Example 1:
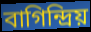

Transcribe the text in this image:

বাগিন্দ্ৰিয়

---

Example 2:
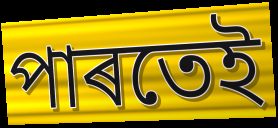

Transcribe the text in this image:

পাৰতেই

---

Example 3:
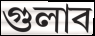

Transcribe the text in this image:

গুলাব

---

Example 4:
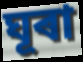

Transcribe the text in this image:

ঘূৰা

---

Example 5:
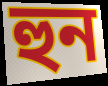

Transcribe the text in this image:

হুন